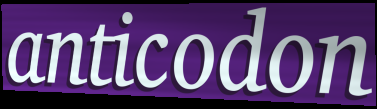
anticodon